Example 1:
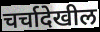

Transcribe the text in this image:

चर्चादेखील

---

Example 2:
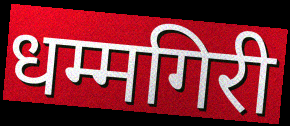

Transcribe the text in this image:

धम्मगिरी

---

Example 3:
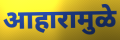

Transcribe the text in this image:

आहारामुळे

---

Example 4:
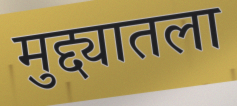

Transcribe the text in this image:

मुद्द्यातला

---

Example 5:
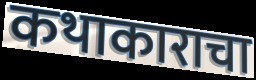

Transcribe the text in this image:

कथाकाराचा